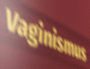
Vaginismus